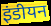
इंडीयन